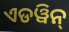
ଏଡୱିନ୍